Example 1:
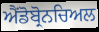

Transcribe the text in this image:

ਐਂਡੋਬ੍ਰੋਨਚਿਅਲ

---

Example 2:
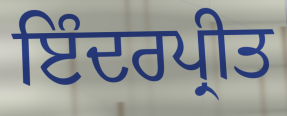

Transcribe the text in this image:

ਇੰਦਰਪ੍ਰੀਤ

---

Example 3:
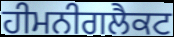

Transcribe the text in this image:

ਹੀਮਨੀਗਲੈਕਟ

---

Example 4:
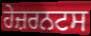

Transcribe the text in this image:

ਹੇਜ਼ਰਨਟਸ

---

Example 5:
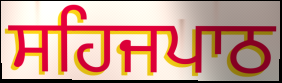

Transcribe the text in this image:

ਸਹਿਜਪਾਠ